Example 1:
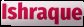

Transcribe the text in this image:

Ishraque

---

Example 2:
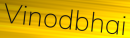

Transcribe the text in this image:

Vinodbhai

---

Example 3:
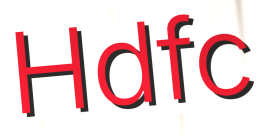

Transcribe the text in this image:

Hdfc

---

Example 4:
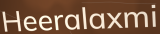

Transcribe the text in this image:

Heeralaxmi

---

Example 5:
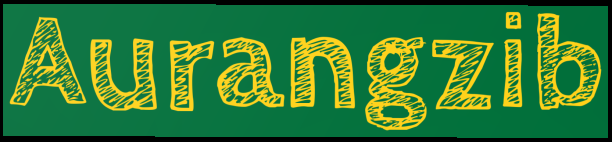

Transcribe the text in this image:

Aurangzib